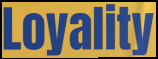
Loyality